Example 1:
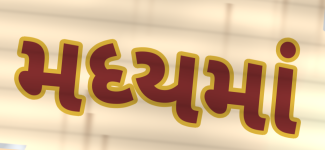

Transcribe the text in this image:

મધ્યમાં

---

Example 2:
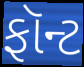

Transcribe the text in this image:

ફૉન્ટ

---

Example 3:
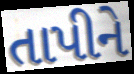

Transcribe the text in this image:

તાપીને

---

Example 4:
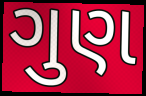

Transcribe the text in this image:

ગુણ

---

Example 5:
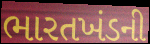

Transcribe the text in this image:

ભારતખંડની